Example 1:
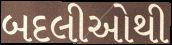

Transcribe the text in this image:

બદલીઓથી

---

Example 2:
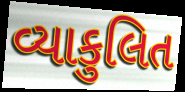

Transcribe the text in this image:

વ્યાકુલિત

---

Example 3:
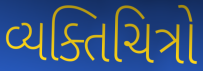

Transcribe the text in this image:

વ્યક્તિચિત્રો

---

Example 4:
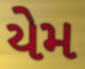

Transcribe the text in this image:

યેમ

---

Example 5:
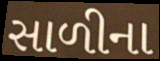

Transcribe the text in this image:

સાળીના